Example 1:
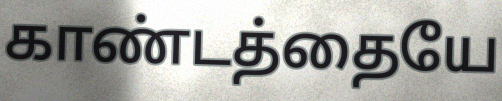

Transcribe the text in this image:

காண்டத்தையே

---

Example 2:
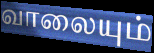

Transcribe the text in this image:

வாலையும்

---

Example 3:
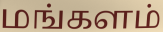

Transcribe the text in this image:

மங்களம்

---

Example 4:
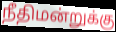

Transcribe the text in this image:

நீதிமன்றுக்கு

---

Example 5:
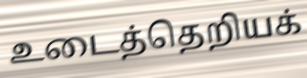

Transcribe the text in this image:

உடைத்தெறியக்